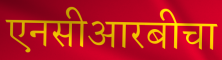
एनसीआरबीचा